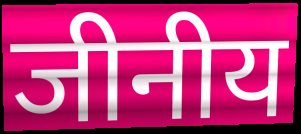
जीनीय